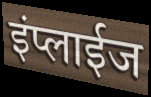
इंप्लाईज